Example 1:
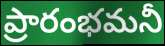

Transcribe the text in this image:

ప్రారంభమనీ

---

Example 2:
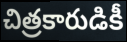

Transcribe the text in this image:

చిత్రకారుడికీ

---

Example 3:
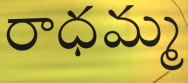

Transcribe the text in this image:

రాధమ్మ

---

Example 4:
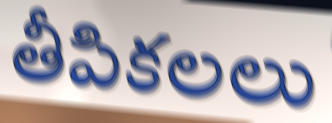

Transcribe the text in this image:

తీపికలలు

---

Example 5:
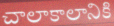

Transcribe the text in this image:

చాలాకాలానికి